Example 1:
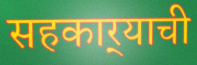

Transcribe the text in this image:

सहकार्याची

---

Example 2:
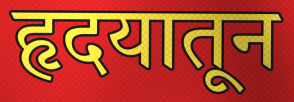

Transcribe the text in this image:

हृदयातून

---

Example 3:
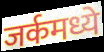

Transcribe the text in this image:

जर्कमध्ये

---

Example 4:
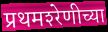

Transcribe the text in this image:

प्रथमश्रेणीच्या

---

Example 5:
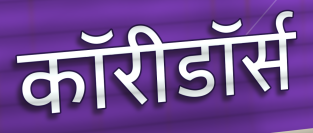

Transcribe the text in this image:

कॉरीडॉर्स